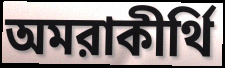
অমরাকীর্থি